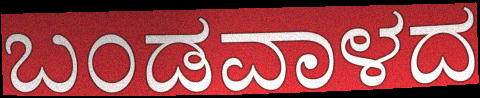
ಬಂಡವಾಳದ